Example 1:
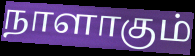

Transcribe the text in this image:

நாளாகும்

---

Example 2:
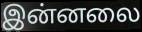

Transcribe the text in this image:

இன்னலை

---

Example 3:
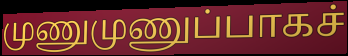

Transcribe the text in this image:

முணுமுணுப்பாகச்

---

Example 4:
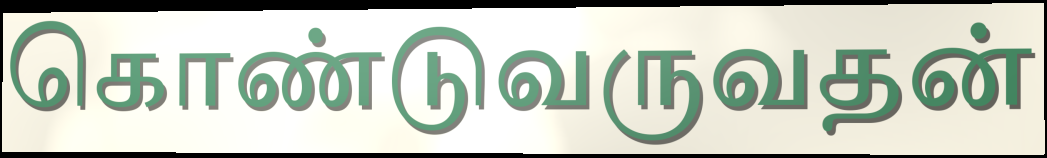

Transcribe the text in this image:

கொண்டுவருவதன்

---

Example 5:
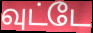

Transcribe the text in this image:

வுட்டே